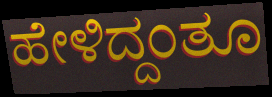
ಹೇಳಿದ್ದಂತೂ